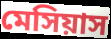
মেসিয়াস